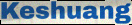
Keshuang